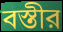
বস্তীর